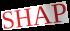
SHAP